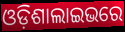
ଓଡ଼ିଶାଲାଇଭରେ